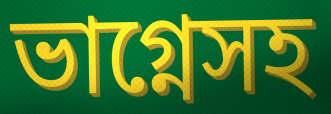
ভাগ্নেসহ